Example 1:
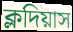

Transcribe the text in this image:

ক্লদিয়াস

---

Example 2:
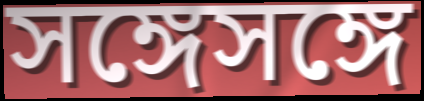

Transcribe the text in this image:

সঙ্গেসঙ্গে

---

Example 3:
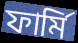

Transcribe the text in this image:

ফার্মি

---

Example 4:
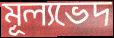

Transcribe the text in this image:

মূল্যভেদ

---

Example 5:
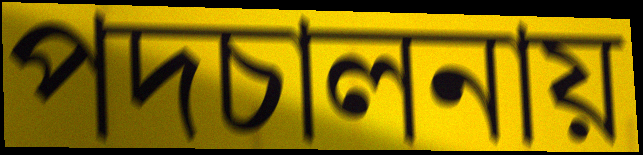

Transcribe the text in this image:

পদচালনায়